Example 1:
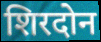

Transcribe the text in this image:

शिरदोन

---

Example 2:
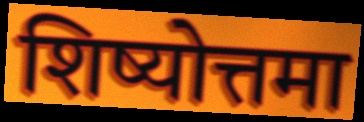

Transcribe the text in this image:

शिष्योत्तमा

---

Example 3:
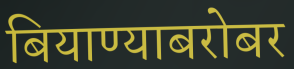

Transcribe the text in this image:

बियाण्याबरोबर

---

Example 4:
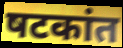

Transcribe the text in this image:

षटकांत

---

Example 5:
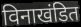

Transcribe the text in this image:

विनाखंडित